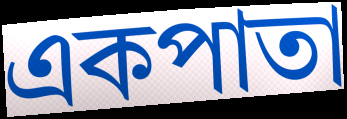
একপাতা